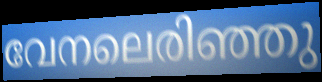
വേനലെരിഞ്ഞു